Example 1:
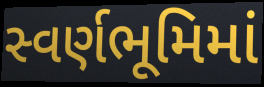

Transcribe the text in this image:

સ્વર્ણભૂમિમાં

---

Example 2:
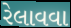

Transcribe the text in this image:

રેલાવવા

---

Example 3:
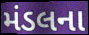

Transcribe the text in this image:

મંડલના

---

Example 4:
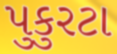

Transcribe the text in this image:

પુકુરટા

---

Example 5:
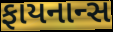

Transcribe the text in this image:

ફાયનાન્સ